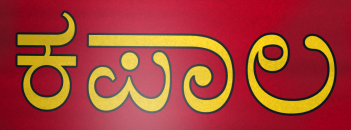
ಕಪಾಲ